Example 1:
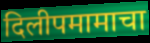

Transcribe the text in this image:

दिलीपमामाचा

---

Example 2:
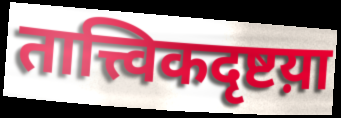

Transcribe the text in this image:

तात्त्विकदृष्टय़ा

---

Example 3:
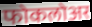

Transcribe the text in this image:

फोकलोअर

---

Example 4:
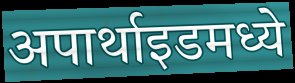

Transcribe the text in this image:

अपार्थाइडमध्ये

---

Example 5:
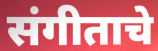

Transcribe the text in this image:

संगीताचे